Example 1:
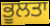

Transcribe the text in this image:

ਭੂਲਤਾ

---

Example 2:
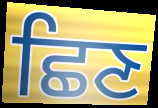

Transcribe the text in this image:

ਛਿਣ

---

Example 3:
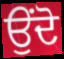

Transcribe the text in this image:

ਉਂਦੋ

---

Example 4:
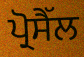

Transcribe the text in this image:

ਪ੍ਰੋਸੈੱਲ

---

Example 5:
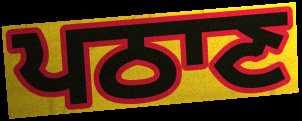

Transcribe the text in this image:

ਪਠਾਣ